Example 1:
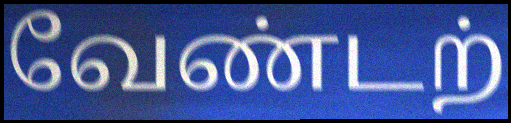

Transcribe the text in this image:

வேண்டற்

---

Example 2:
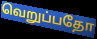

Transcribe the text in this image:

வெறுப்பதோ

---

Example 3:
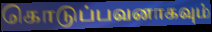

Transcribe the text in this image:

கொடுப்பவனாகவும்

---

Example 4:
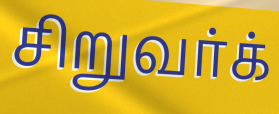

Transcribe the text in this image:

சிறுவர்க்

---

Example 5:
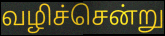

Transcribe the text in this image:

வழிச்சென்று